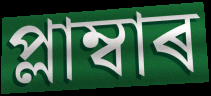
প্লাম্বাৰ